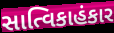
સાત્વિકાહંકાર